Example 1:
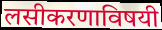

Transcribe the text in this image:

लसीकरणाविषयी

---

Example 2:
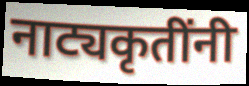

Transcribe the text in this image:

नाट्यकृतींनी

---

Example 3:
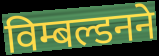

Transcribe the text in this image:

विम्बल्डनने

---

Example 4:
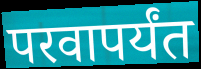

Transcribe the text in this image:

परवापर्यंत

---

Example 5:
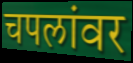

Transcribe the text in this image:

चपलांवर